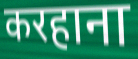
करहाना